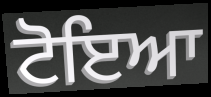
ਟੋਇਆ